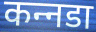
कन्नडा